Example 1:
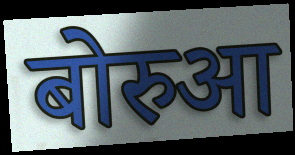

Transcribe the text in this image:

बोरुआ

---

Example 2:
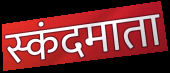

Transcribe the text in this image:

स्‍कंदमाता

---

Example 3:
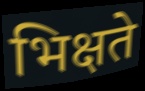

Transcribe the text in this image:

भिक्षते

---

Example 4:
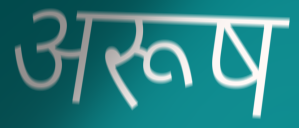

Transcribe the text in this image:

अरूष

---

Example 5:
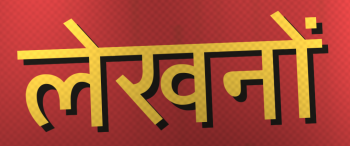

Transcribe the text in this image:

लेखनों